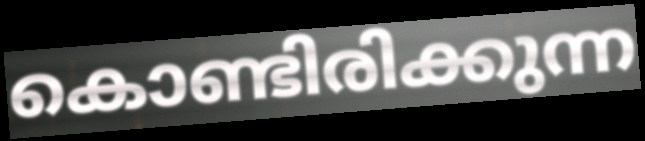
കൊണ്ടിരിക്കുന്ന